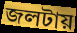
জলটায়